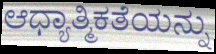
ಆಧ್ಯಾತ್ಮಿಕತೆಯನ್ನು